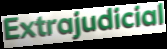
Extrajudicial